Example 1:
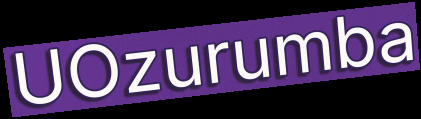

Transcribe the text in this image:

UOzurumba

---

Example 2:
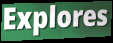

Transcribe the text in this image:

Explores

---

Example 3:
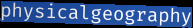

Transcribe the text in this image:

physicalgeography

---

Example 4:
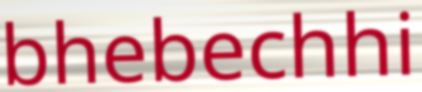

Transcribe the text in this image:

bhebechhi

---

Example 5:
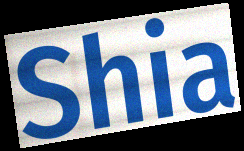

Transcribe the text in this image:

Shia